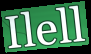
Ilell